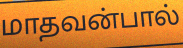
மாதவன்பால்